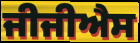
ਜੀਜੀਐਸ